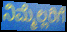
ನಿಮ್ಮೆಲ್ಲರಿಗೆ